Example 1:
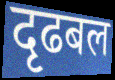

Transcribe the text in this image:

दृढबल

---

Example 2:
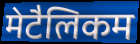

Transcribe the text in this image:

मेटैलिकम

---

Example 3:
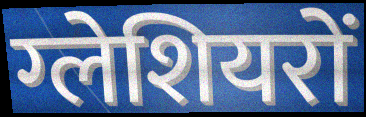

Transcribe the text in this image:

ग्‍लेशियरों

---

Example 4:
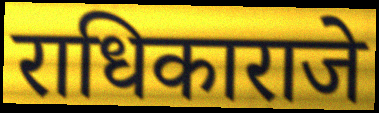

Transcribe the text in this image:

राधिकाराजे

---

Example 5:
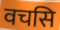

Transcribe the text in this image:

वचसि